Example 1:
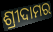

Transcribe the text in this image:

ଶ୍ରୀଦାମର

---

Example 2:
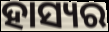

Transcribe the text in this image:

ହାସ୍ୟର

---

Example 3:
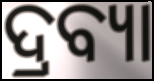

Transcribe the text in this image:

ଦ୍ରବ୍ୟା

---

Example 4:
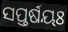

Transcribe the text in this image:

ସପ୍ତର୍ଷୟଃ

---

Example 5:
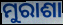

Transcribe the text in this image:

ମୁରାଶା